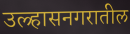
उल्हासनगरातील